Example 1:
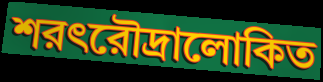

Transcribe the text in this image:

শরৎরৌদ্রালোকিত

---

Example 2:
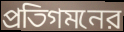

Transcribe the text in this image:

প্রতিগমনের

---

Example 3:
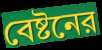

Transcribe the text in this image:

বেষ্টনের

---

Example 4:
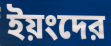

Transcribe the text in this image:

ইয়ংদের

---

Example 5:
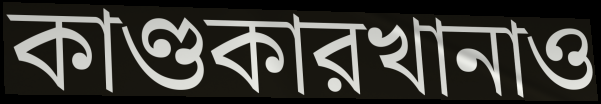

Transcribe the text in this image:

কাণ্ডকারখানাও